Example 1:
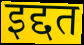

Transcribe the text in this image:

इद्दत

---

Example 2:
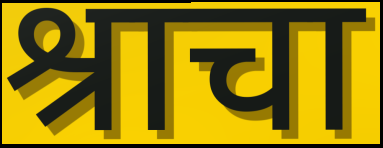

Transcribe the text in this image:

श्राचा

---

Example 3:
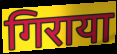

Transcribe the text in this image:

गिराया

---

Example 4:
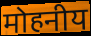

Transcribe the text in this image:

मोहनीय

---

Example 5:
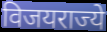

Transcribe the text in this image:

विजयराज्ये